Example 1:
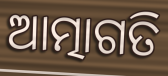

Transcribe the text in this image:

ଆତ୍ମାଗତି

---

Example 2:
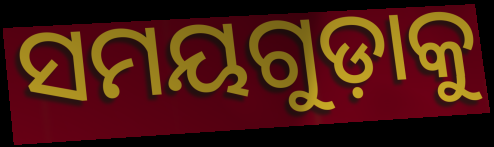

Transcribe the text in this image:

ସମୟଗୁଡ଼ାକୁ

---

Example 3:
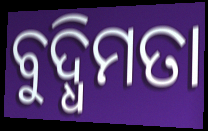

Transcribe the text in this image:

ବୁଦ୍ଧିମତା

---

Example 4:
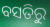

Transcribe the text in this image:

ବସତିରୁ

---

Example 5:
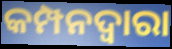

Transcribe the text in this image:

କମ୍ପନଦ୍ୱାରା